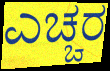
ಎಚ್ಚರ